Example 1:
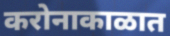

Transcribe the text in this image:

करोनाकाळात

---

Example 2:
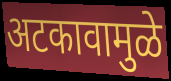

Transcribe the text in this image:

अटकावामुळे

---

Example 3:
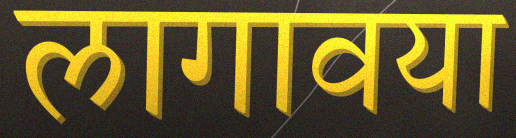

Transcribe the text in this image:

लागावया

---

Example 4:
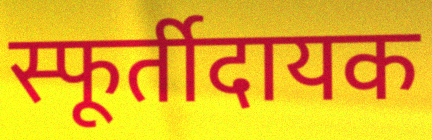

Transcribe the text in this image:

स्फूर्तीदायक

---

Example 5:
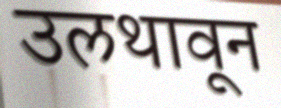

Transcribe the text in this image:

उलथावून